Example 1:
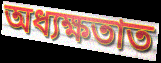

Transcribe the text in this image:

অধ্যক্ষতাত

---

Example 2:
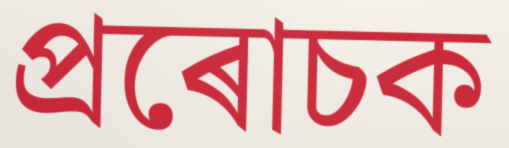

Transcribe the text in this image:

প্ৰৰোচক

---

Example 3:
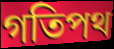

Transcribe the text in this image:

গতিপথ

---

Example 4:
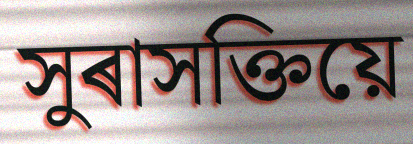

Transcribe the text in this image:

সুৰাসক্তিয়ে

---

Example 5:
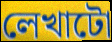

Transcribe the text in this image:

লেখাটো